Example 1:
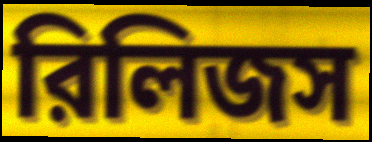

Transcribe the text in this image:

রিলিজস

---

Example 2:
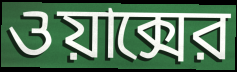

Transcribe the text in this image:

ওয়াক্সের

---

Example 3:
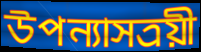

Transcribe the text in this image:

উপন্যাসত্রয়ী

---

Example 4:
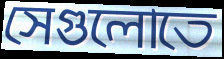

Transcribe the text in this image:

সেগুলোতে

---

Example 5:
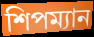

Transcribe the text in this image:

শিপম্যান